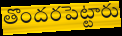
తొందరపెట్టారు